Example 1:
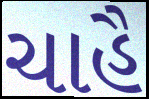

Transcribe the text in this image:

ચાહૈ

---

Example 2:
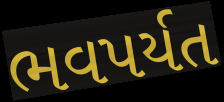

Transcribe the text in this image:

ભવપર્યત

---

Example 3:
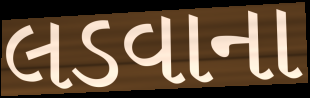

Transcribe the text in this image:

લડવાના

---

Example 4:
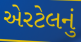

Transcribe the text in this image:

એરટેલનું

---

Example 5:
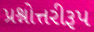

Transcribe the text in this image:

પ્રશ્નોત્તરીરૂપ